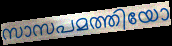
സാസപമത്തിയോ